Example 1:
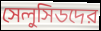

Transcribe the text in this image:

সেলুসিডদের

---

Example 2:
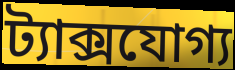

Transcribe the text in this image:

ট্যাক্সযোগ্য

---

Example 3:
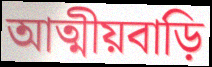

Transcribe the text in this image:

আত্মীয়বাড়ি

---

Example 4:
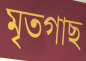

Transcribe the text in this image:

মৃতগাছ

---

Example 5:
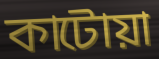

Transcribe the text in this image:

কাটোয়া